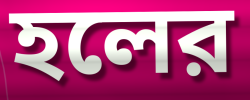
হলের